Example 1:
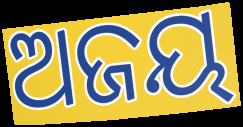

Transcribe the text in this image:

ଅଜୟ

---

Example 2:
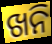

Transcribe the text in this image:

ଖନି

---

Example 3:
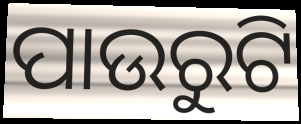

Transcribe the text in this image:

ପାଉରୁଟି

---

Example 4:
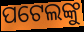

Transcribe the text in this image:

ପଟେଲଙ୍କୁ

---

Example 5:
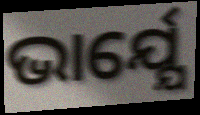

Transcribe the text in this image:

ଭାର୍ଯ୍ଯେ